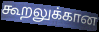
கூறலுக்கான